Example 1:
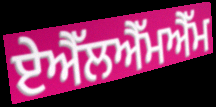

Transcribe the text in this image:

ਏਐੱਲਐੱਮਐੱਮ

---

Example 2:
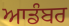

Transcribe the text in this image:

ਆਡੰਬਰ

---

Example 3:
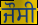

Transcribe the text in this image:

ਜੌਸੀ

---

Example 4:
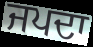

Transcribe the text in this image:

ਜਪਦਾ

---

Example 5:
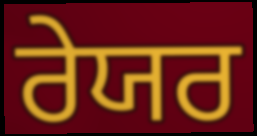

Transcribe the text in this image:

ਰੇਯਰ